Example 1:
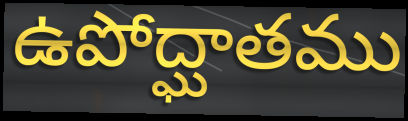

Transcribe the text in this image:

ఉపోద్ఘాతము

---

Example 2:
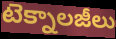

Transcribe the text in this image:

టెక్నాలజీలు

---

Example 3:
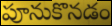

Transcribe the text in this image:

పూనుకొనడం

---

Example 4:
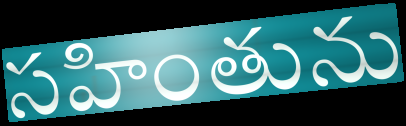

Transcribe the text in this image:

సహింతును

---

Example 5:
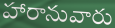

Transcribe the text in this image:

హారానువారు